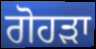
ਗੋਹੜਾ